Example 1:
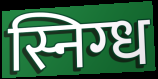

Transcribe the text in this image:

स्निग्ध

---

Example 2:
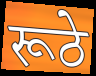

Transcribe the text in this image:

रूठे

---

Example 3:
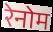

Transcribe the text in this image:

रेनोम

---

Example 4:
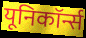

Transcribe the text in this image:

यूनिकॉर्न्स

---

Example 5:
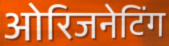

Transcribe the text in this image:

ओरिजनेटिंग